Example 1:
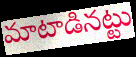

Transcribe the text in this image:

మాటాడినట్టు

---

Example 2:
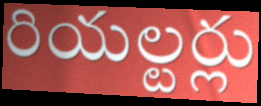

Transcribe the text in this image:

రియల్టర్లు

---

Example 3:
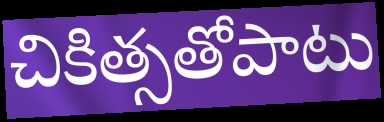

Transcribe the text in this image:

చికిత్సతోపాటు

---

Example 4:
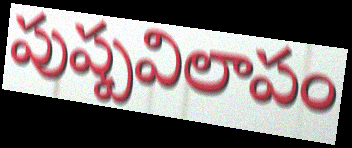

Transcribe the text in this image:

పుష్పవిలాపం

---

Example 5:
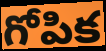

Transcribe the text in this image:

గోపిక